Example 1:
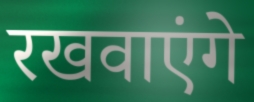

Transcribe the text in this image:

रखवाएंगे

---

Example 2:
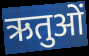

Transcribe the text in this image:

ऋतुओं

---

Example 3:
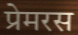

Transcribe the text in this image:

प्रेमरस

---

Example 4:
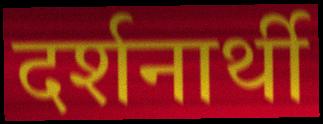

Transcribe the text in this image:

दर्शनार्थी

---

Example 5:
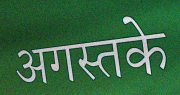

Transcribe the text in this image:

अगस्तके